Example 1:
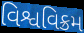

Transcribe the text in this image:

વિશ્વવિક્રમ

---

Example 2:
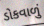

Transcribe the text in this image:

ડોકવાળું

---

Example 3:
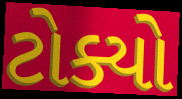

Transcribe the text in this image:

ટોક્યો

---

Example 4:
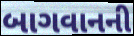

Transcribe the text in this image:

બાગવાનની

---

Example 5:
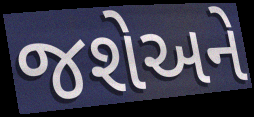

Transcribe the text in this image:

જશેઅને